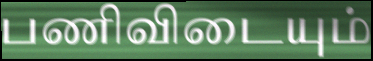
பணிவிடையும்